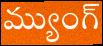
మ్యుంగ్